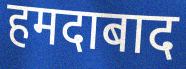
हमदाबाद